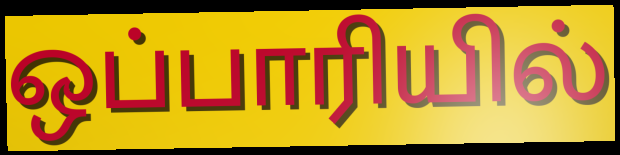
ஒப்பாரியில்